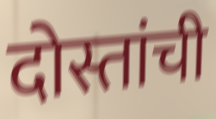
दोस्तांची